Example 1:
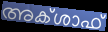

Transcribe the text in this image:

അക്ശാഫ്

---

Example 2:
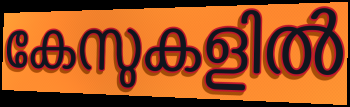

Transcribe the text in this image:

കേസുകളിൽ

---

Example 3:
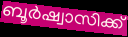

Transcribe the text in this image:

ബൂർഷ്വാസിക്ക്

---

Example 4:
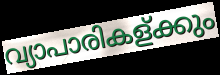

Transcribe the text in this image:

വ്യാപാരികള്ക്കും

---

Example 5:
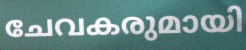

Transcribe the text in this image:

ചേവകരുമായി